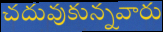
చదువుకున్నవారు